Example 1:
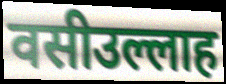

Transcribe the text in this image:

वसीउल्लाह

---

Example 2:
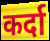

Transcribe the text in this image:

कर्दा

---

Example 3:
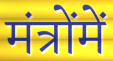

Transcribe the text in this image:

मंत्रोंमें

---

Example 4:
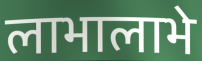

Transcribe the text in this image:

लाभालाभे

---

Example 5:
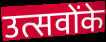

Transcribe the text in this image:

उत्सवोंके